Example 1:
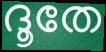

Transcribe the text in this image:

ദൂതേ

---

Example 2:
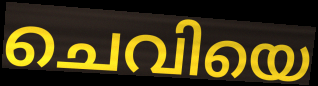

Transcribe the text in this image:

ചെവിയെ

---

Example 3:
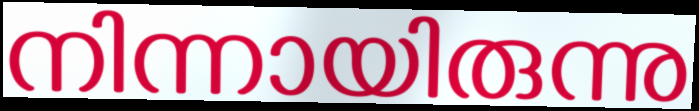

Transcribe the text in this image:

നിന്നായിരുന്നു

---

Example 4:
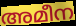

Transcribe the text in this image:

അമീന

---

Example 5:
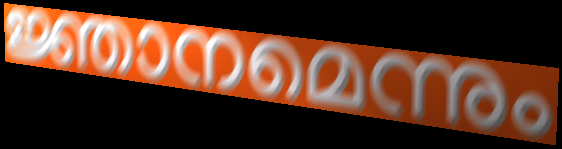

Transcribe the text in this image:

ജ്ഞാനമെന്നും